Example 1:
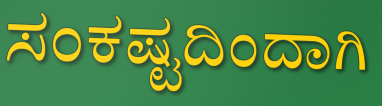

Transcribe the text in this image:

ಸಂಕಷ್ಟದಿಂದಾಗಿ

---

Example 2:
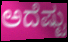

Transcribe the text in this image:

ಅದೆಷ್ಟು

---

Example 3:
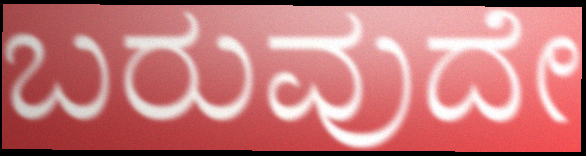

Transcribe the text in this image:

ಬರುವುದೇ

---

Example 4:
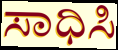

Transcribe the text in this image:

ಸಾಧಿಸಿ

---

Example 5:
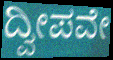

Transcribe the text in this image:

ದ್ವೀಪವೇ